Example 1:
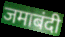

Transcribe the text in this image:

जमाबंदी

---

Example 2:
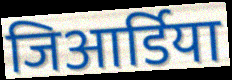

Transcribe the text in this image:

जिआर्डिया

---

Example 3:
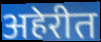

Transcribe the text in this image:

अहेरीत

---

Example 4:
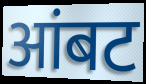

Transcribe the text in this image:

आंबट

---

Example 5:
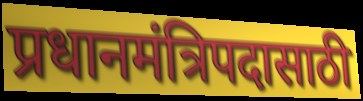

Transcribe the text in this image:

प्रधानमंत्रिपदासाठी